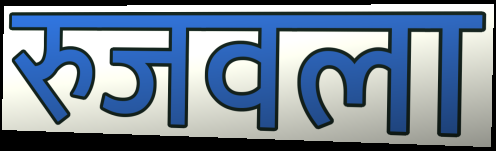
रुजवला